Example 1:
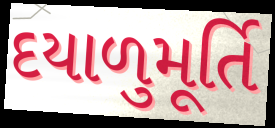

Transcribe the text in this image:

દયાળુમૂર્તિ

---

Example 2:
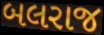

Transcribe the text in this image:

બલરાજ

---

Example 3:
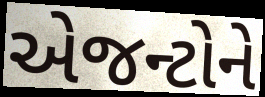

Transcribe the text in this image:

એજન્ટોને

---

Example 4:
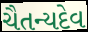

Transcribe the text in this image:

ચૈતન્યદેવ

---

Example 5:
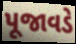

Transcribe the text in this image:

પૂજાવડે